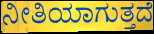
ನೀತಿಯಾಗುತ್ತದೆ